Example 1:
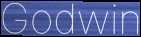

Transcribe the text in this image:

Godwin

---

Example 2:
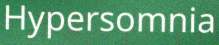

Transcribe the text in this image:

Hypersomnia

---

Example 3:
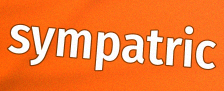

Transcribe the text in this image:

sympatric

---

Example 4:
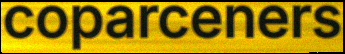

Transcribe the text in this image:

coparceners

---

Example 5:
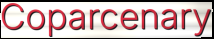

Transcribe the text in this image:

Coparcenary